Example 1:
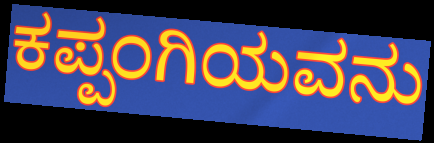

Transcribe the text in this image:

ಕಪ್ಪಂಗಿಯವನು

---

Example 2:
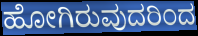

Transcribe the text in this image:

ಹೋಗಿರುವುದರಿಂದ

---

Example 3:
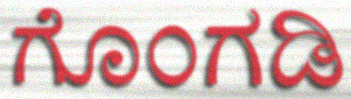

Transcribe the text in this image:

ಗೊಂಗಡಿ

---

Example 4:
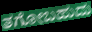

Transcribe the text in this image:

ತಗೋಬಹುದು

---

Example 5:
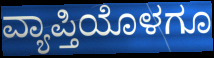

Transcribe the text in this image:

ವ್ಯಾಪ್ತಿಯೊಳಗೂ